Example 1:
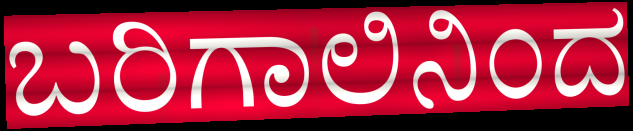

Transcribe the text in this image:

ಬರಿಗಾಲಿನಿಂದ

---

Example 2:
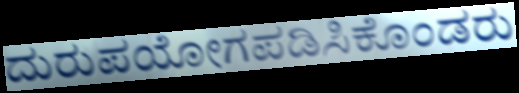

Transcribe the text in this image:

ದುರುಪಯೋಗಪಡಿಸಿಕೊಂಡರು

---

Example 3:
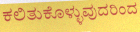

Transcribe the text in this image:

ಕಲಿತುಕೊಳ್ಳುವುದರಿಂದ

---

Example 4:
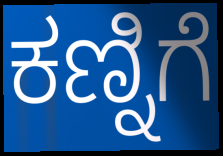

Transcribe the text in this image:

ಕಣ್ನಿಗೆ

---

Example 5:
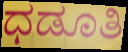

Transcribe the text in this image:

ಧಡೂತಿ